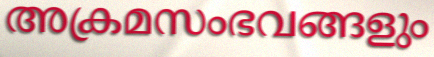
അക്രമസംഭവങ്ങളും